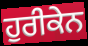
ਹੁਰੀਕੇਨ